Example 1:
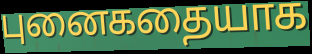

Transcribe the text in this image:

புனைகதையாக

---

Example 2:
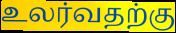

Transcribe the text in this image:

உலர்வதற்கு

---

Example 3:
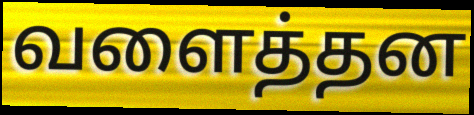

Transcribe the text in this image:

வளைத்தன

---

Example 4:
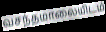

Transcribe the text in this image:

வசந்தமாலையிடம்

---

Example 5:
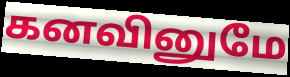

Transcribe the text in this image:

கனவினுமே